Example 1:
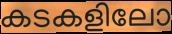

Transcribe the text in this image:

കടകളിലോ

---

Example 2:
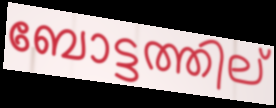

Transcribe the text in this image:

ബോട്ടത്തില്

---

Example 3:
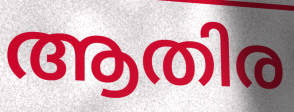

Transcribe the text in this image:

ആതിര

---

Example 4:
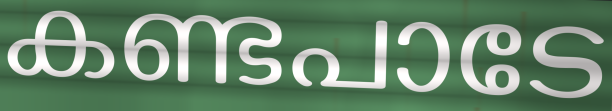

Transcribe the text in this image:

കണ്ടപാടേ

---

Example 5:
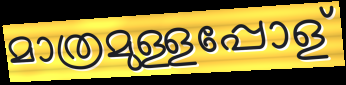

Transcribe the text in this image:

മാത്രമുള്ളപ്പോള്